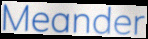
Meander